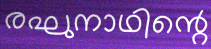
രഘുനാഥിന്റെ